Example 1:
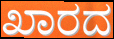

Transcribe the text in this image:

ಖಾರದ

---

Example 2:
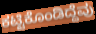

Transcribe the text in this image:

ಕಟ್ಟಿಕೊಂಡಿದ್ದೆವು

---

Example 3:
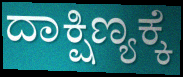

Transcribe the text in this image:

ದಾಕ್ಷಿಣ್ಯಕ್ಕೆ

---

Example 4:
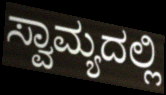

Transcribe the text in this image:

ಸ್ವಾಮ್ಯದಲ್ಲಿ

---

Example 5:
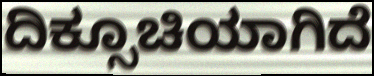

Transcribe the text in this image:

ದಿಕ್ಸೂಚಿಯಾಗಿದೆ